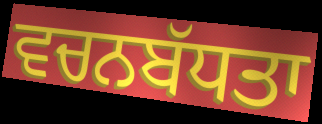
ਵਚਨਬੱਧਤਾ